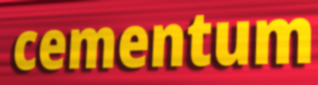
cementum